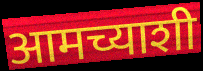
आमच्याशी